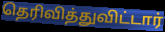
தெரிவித்துவிட்டார்